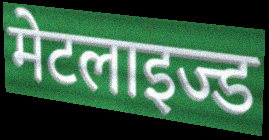
मेटलाइज्ड